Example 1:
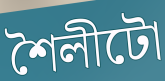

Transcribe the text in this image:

শৈলীটো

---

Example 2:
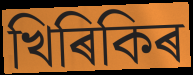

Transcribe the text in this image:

খিৰিকিৰ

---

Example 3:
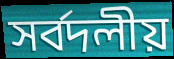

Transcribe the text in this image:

সৰ্বদলীয়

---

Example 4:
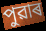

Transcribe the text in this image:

পুৱাৰ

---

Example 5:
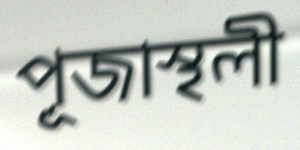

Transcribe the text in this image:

পূজাস্থলী